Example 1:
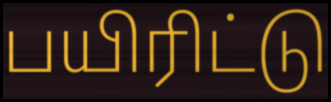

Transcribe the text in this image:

பயிரிட்டு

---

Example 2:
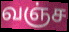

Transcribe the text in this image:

வஞ்ச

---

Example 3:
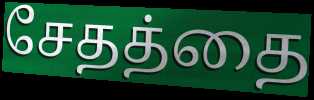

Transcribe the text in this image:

சேதத்தை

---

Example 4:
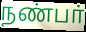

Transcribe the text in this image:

நண்பர்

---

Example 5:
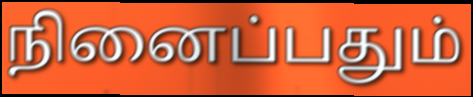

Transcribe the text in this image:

நினைப்பதும்